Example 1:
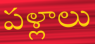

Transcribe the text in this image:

పళ్లాలు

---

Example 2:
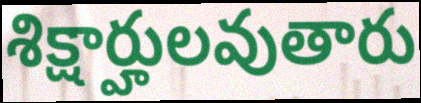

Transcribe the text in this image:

శిక్షార్హులవుతారు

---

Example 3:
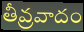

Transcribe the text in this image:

తీవ్రవాదం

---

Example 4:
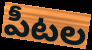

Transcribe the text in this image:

పీటల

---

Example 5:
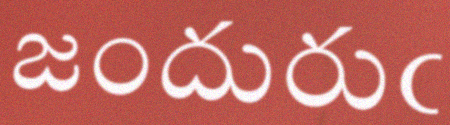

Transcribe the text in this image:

జందురుఁ